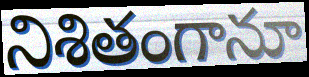
నిశితంగానూ